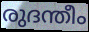
രുദന്തീം